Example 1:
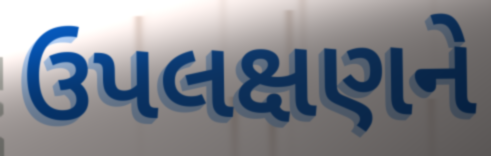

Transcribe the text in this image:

ઉપલક્ષણને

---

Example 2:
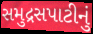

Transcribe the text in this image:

સમુદ્રસપાટીનું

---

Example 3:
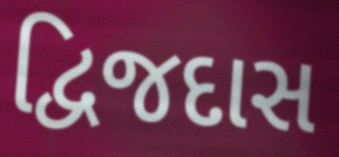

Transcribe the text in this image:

દ્વિજદાસ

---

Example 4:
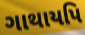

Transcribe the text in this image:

ગાથાયપિ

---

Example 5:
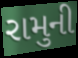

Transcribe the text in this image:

રામુની